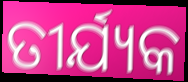
ତୀର୍ଯ୍ୟକ